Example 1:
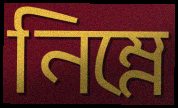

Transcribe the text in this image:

নিম্নে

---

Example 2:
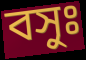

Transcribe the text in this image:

বসুঃ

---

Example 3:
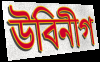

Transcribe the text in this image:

উবিনীগ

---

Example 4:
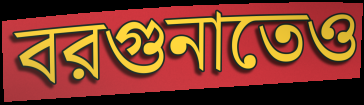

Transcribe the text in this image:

বরগুনাতেও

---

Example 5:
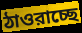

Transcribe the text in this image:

ঠাওরাচ্ছে